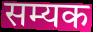
सम्‍यक